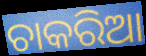
ଚାକରିଆ